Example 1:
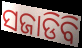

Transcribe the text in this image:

ସଜାଡିବି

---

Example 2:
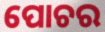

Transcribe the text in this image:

ପୋଚର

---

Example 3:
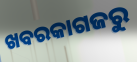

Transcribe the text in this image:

ଖବରକାଗଜରୁ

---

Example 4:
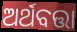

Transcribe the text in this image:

ଅର୍ଥବତ୍ତା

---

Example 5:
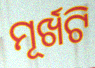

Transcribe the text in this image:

ମୂର୍ଖଟି